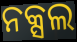
ନକ୍ସଲ